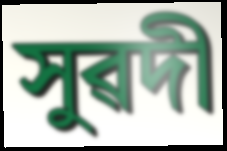
সুৱদী